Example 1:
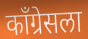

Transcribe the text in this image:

काँग्रेसला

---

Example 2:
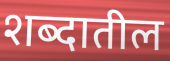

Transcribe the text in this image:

शब्दातील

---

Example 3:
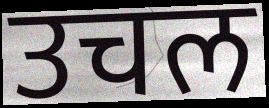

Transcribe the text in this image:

उचल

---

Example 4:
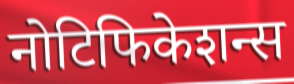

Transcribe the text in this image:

नोटिफिकेशन्स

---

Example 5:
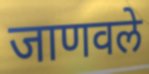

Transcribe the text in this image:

जाणवले